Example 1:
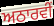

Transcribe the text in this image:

ਅਠਾਰਵੀਂ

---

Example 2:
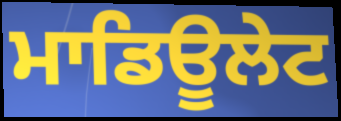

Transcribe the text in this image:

ਮਾਡਿਊਲੇਟ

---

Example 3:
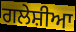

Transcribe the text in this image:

ਗਲੇਸ਼ੀਆ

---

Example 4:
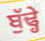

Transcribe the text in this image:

ਬੁੱਢ੍ਹੇ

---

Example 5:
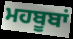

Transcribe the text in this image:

ਮਹਬੂਬਾਂ